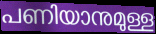
പണിയാനുമുള്ള